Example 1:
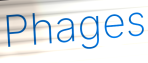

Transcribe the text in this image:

Phages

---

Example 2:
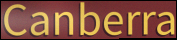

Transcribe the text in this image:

Canberra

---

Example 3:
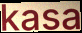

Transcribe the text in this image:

kasa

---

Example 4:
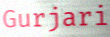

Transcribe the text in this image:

Gurjari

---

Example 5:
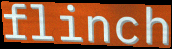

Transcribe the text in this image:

flinch